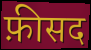
फ़ीसद